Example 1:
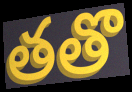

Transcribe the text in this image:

తతొ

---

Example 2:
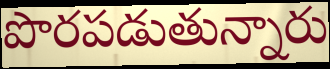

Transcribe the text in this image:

పొరపడుతున్నారు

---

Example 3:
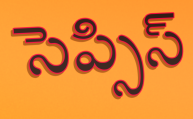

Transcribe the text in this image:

సెప్సిస్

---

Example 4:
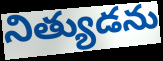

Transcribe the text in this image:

నిత్యుడను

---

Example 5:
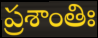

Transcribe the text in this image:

ప్రశాంతిః